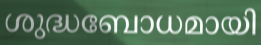
ശുദ്ധബോധമായി